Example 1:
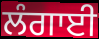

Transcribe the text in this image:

ਲੰਗਾਈ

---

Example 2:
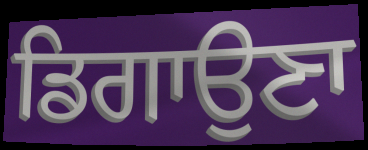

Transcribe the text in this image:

ਡਿਗਾਉਣਾ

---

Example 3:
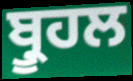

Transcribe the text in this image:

ਬ੍ਰੂਹਲ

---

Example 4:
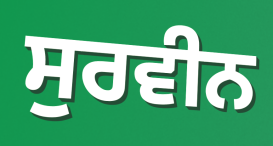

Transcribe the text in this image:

ਸੁਰਵੀਨ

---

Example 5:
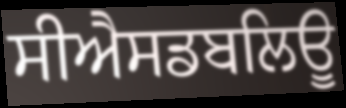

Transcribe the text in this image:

ਸੀਐਸਡਬਲਿਊ